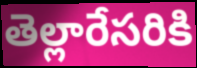
తెల్లారేసరికి